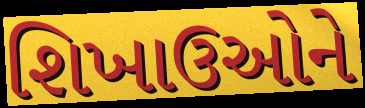
શિખાઉઓને